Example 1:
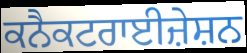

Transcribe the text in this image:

ਕਨੈਕਟਰਾਈਜ਼ੇਸ਼ਨ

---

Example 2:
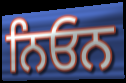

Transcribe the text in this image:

ਨਿਓਨ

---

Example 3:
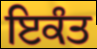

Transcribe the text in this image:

ਇਕੰਤ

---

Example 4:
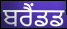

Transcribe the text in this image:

ਬਰੈਂਡਡ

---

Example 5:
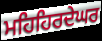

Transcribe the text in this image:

ਮਹਿਹਿਰਦੇਘਰ